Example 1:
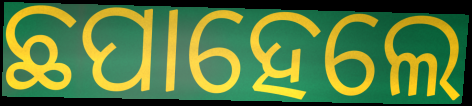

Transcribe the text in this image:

ଛପାହେଲେ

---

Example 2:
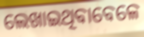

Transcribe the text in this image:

ଲେଖାଇଥିବାବେଳେ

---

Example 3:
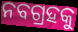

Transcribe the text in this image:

ନବଗ୍ରହକୁ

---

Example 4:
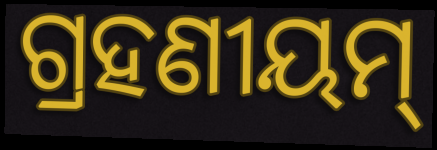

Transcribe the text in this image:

ଗ୍ରହଣୀୟମ୍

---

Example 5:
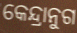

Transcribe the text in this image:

କେନ୍ଦ୍ରାନୁଗ